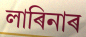
লাৰিনাৰ